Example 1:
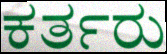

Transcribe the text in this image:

ಕರ್ತರು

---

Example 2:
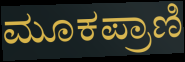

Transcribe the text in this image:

ಮೂಕಪ್ರಾಣಿ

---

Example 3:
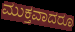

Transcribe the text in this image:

ಮುಕ್ತವಾದರೂ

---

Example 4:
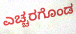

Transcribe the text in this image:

ಎಚ್ಚರಗೊಂಡ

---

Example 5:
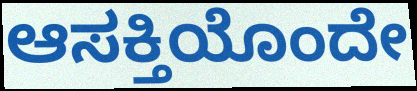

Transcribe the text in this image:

ಆಸಕ್ತಿಯೊಂದೇ